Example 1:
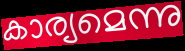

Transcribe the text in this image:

കാര്യമെന്നു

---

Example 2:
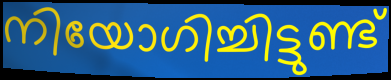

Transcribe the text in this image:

നിയോഗിച്ചിട്ടുണ്ട്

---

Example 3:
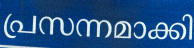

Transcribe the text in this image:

പ്രസന്നമാക്കി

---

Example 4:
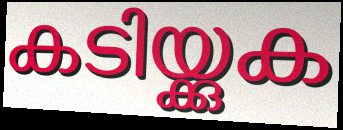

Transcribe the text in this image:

കടിയ്ക്കുക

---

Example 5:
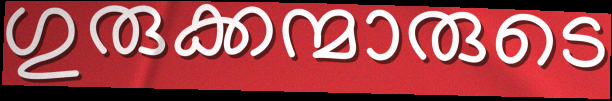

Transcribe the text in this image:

ഗുരുക്കന്മാരുടെ